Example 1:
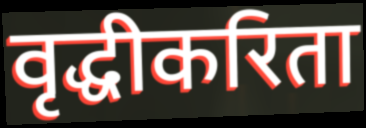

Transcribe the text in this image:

वृद्धीकरिता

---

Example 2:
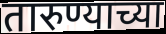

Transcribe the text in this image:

तारुण्याच्या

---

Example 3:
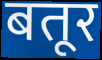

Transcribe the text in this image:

बतूर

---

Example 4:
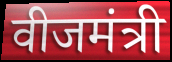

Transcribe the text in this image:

वीजमंत्री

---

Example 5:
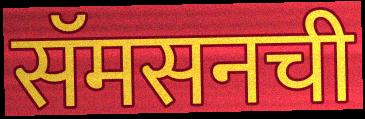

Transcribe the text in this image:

सॅमसनची